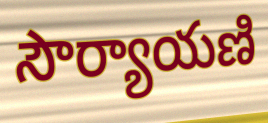
సౌర్యాయణి